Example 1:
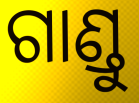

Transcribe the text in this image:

ଗାଣ୍ଡୁ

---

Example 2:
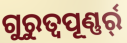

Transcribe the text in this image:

ଗୁରୁତ୍ୱପୂଣ୍ଣର୍ର୍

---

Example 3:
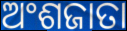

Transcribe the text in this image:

ଅଂଶଜାତା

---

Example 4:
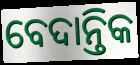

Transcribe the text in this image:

ବେଦାନ୍ତିକ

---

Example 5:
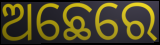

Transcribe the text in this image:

ଅଛେରେ